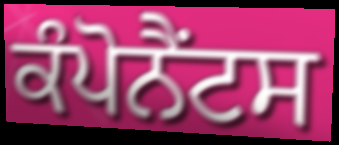
ਕੰਪੋਨੈਂਟਸ